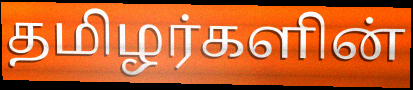
தமிழர்களின்